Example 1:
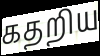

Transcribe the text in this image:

கதறிய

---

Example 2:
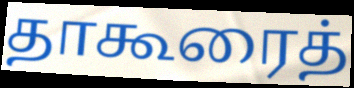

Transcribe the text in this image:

தாகூரைத்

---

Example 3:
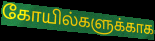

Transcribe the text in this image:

கோயில்களுக்காக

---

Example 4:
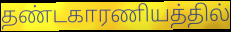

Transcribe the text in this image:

தண்டகாரணியத்தில்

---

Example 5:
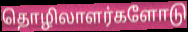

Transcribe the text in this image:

தொழிலாளர்களோடு